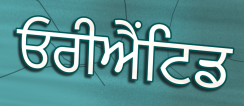
ਓਰੀਐਂਟਿਡ